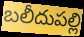
బలీదుపల్లి